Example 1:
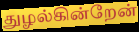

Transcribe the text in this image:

துழல்கின்றேன்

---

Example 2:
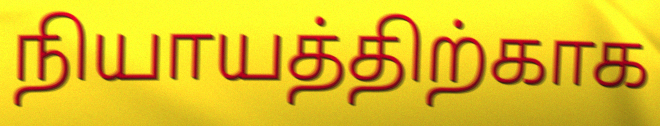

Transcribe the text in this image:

நியாயத்திற்காக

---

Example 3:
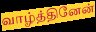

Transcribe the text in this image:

வாழ்த்தினேன்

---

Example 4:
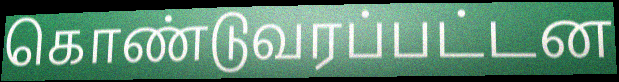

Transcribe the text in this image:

கொண்டுவரப்பட்டன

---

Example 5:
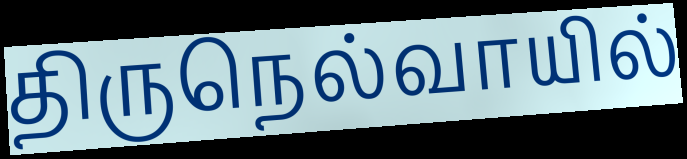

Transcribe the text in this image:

திருநெல்வாயில்